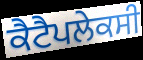
ਕੈਟੈਪਲੇਕਸੀ